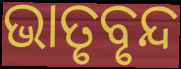
ଭାତୃବୃନ୍ଦ